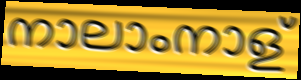
നാലാംനാള്